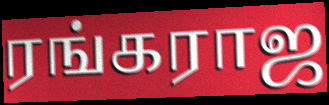
ரங்கராஜ